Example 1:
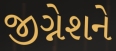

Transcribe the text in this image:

જીગ્નેશને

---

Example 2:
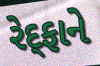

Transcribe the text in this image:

રેદ્ફાને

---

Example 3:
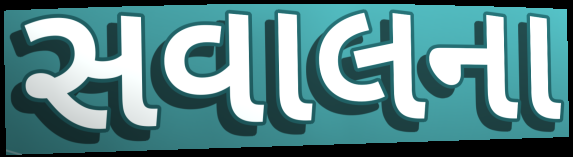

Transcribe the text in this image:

સવાલના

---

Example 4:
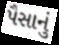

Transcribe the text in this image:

પૈસાનું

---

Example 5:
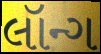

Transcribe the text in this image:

લૉન્ગ